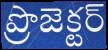
ప్రొజెక్టర్